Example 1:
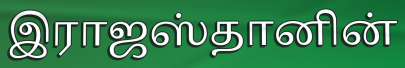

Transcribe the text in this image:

இராஜஸ்தானின்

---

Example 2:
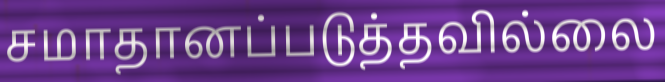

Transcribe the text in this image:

சமாதானப்படுத்தவில்லை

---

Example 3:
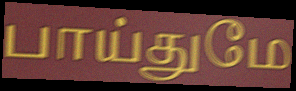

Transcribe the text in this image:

பாய்துமே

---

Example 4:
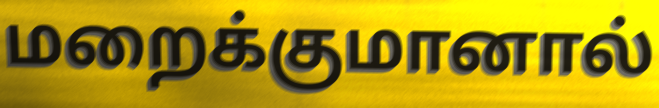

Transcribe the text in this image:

மறைக்குமானால்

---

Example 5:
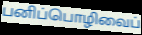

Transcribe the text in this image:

பனிப்பொழிவைப்